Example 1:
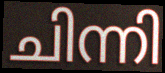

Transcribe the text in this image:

ചിന്നി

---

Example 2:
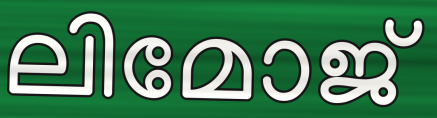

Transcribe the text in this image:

ലിമോജ്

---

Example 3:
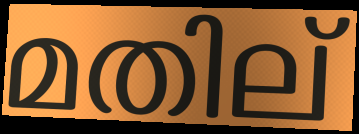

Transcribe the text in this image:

മതില്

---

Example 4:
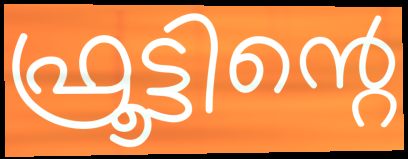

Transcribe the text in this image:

ഫ്രൂട്ടിന്റെ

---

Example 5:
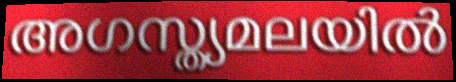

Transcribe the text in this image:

അഗസ്ത്യമലയിൽ